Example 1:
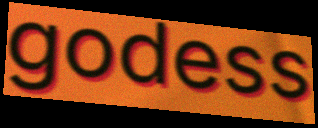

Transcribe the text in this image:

godess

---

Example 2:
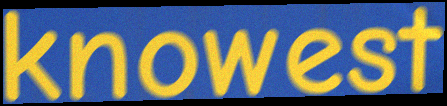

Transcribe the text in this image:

knowest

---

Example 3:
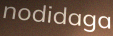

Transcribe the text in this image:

nodidaga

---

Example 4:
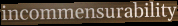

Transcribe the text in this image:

incommensurability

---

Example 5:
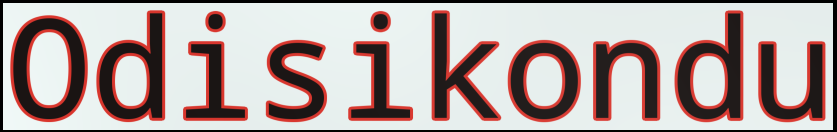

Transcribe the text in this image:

Odisikondu